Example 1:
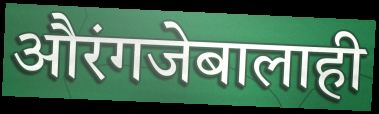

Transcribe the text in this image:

औरंगजेबालाही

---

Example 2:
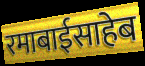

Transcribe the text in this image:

रमाबाईसाहेब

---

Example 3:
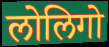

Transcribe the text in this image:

लोलिगो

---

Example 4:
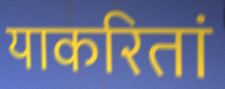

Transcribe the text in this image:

याकरितां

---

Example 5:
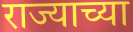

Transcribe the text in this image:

राज्याच्या